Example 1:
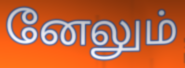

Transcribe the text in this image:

னேலும்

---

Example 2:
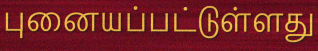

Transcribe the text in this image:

புனையப்பட்டுள்ளது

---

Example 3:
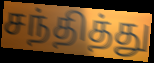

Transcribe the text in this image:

சந்தித்து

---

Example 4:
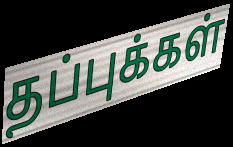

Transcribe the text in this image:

தப்புக்கள்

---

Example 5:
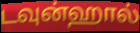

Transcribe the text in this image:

டவுன்ஹால்